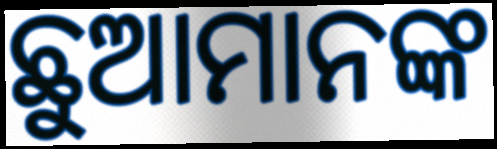
ଛୁଆମାନଙ୍କ